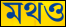
মথও